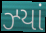
ઝ્યાં